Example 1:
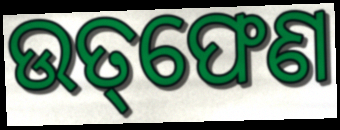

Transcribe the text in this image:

ଉତ୍‌ଫେଣ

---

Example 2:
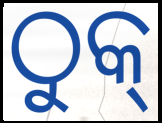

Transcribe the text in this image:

ଠୁକ୍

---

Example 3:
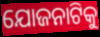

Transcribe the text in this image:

ଯୋଜନାଟିକୁ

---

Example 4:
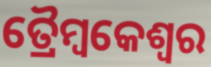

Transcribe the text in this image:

ତ୍ରୈମ୍ବକେଶ୍ୱର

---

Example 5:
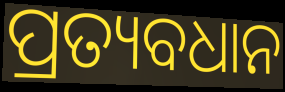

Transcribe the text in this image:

ପ୍ରତ୍ୟବଧାନ